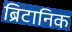
ब्रिटानिक